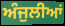
ਅੰਜੁਲੀਆਂ